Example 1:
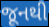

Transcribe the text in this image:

જૂનથી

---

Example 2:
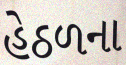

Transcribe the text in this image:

હેઠળના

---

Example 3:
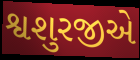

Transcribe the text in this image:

શ્વશુરજીએ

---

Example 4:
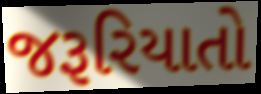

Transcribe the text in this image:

જરૂરિયાતો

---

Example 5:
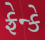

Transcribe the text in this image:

ફ્રેન્કે